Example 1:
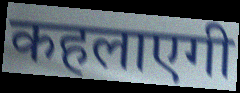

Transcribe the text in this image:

कहलाएगी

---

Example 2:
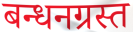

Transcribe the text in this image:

बन्धनग्रस्त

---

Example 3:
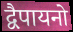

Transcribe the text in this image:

द्वैपायनो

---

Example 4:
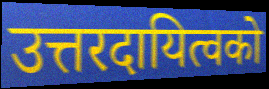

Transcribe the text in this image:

उत्तरदायित्वको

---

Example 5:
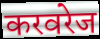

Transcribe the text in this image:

करवरेज